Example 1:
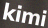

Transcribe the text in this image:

kimi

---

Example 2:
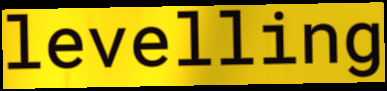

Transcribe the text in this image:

levelling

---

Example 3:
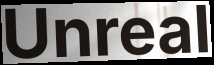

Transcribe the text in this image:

Unreal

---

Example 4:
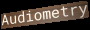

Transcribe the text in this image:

Audiometry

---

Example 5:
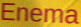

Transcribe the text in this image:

Enema